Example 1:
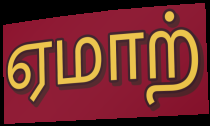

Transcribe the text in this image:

ஏமாற்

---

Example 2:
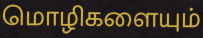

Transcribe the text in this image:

மொழிகளையும்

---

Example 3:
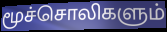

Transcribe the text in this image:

மூச்சொலிகளும்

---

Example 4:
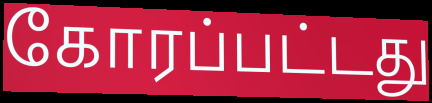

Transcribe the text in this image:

கோரப்பட்டது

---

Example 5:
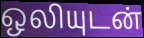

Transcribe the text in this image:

ஒலியுடன்